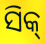
ସିକ୍